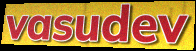
vasudev